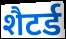
शैटर्ड